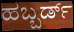
ಹಬ್ಬರ್ಡ್